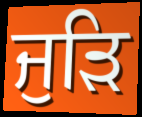
ਜੁੜਿ